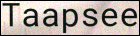
Taapsee